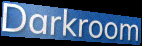
Darkroom